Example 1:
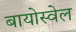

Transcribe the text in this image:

बायोस्वेल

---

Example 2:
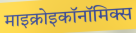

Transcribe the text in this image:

माइक्रोइकॉनॉमिक्स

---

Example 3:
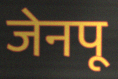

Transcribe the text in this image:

जेनपू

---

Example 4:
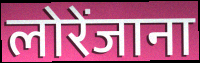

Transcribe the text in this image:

लोरेंजाना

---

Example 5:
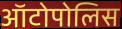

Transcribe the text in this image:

ऑटोपोलिस